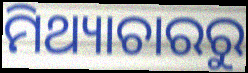
ମିଥ୍ୟାଚାରରୁ